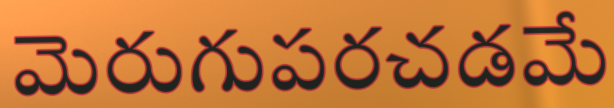
మెరుగుపరచడమే